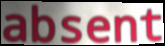
absent